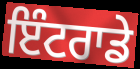
ਇੰਟਰਾਡੇ